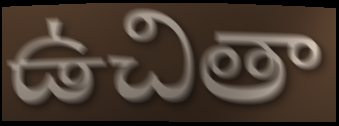
ఉచితా